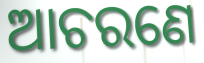
ଆଚରଣେ